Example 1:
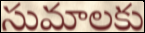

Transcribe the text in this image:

సుమాలకు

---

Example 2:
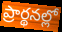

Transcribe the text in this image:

ప్రార్థనల్లో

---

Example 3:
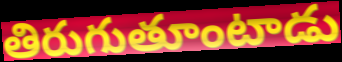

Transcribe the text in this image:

తిరుగుతూంటాడు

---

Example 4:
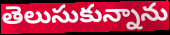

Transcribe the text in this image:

తెలుసుకున్నాను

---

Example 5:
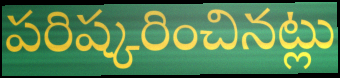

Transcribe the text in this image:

పరిష్కరించినట్లు